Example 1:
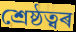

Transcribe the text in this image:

শ্ৰেষ্ঠত্বৰ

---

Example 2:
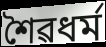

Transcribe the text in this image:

শৈৱধৰ্ম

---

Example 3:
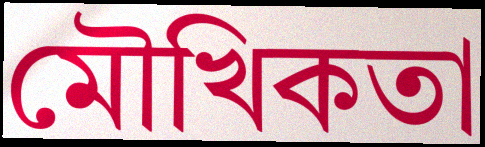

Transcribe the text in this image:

মৌখিকতা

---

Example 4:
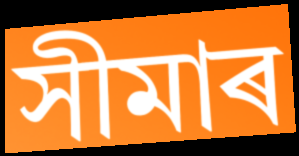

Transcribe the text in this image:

সীমাৰ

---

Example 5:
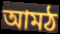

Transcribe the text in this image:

আমঠ